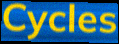
Cycles